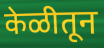
केळीतून